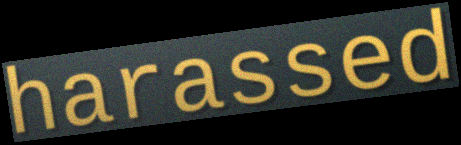
harassed